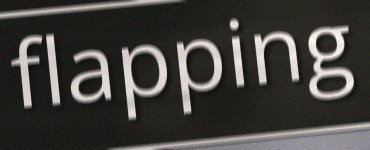
flapping